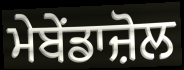
ਮੇਬੇਂਡਾਜ਼ੋਲ